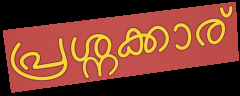
പ്രശ്നക്കാര്